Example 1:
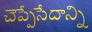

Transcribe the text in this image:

చెప్పేసేదాన్ని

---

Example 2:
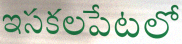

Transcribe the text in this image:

ఇసకలపేటలో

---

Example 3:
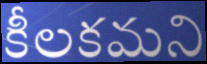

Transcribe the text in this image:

కీలకమని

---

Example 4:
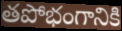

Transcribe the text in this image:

తపోభంగానికి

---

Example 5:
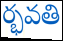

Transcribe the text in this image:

ర్భవతి